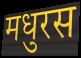
मधुरस